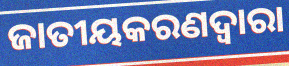
ଜାତୀୟକରଣଦ୍ୱାରା